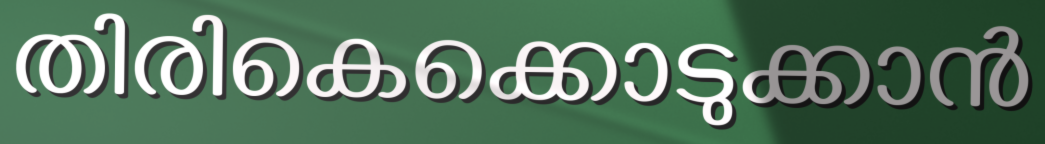
തിരികെക്കൊടുക്കാൻ